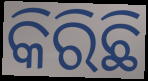
କିରିଛି